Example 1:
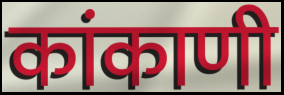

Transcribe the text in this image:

कांकाणी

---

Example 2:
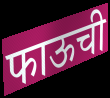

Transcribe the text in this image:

फाऊची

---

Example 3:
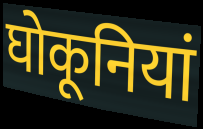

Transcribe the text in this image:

घोकूनियां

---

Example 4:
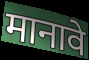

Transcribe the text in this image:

मानावे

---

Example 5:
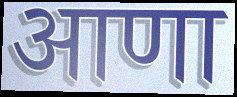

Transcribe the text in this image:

आणा